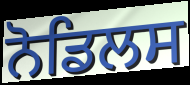
ਨੋਡਿਲਸ